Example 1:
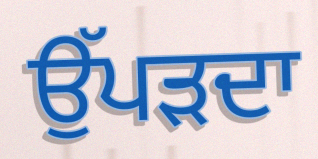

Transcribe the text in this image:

ਉੱਪੜਦਾ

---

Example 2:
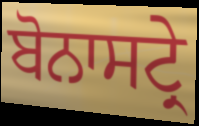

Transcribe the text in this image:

ਬੋਨਾਸਟ੍ਰੇ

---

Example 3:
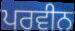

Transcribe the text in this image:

ਪਰਵੀਨ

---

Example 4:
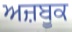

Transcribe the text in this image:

ਅਜ਼ਬੂਕ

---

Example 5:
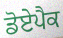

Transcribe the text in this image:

ਡੋਏਪੈਕ